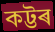
কট্টৰ